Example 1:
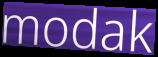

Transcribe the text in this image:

modak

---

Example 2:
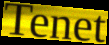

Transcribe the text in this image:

Tenet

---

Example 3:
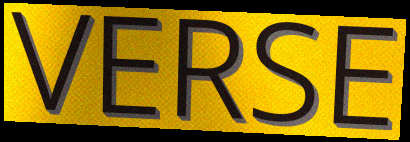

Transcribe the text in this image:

VERSE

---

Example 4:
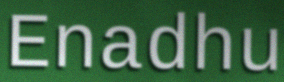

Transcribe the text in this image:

Enadhu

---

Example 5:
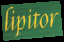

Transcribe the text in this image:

lipitor